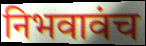
निभवावंच